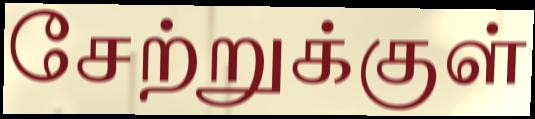
சேற்றுக்குள்